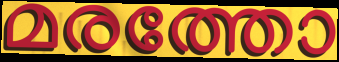
മരത്തോ